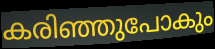
കരിഞ്ഞുപോകും